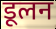
डूलन